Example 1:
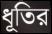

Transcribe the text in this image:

ধূতির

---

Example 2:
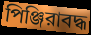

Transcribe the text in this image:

পিঞ্জিরাবদ্ধ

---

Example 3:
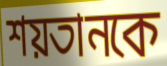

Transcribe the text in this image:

শয়তানকে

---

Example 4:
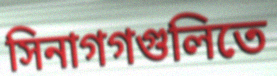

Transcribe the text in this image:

সিনাগগগুলিতে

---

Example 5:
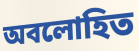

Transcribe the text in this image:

অবলোহিত